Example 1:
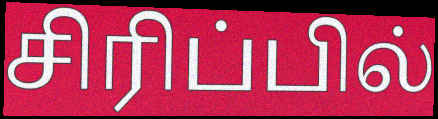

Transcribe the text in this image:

சிரிப்பில்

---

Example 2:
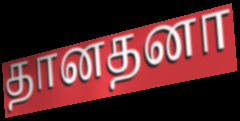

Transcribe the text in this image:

தானதனா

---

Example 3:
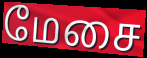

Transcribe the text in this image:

மேசை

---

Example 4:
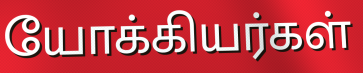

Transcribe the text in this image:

யோக்கியர்கள்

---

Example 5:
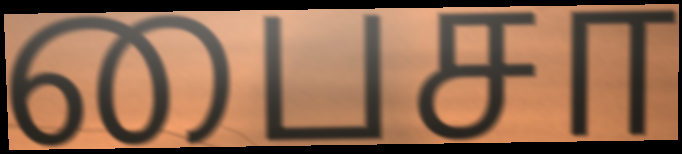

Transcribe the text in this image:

பைசா